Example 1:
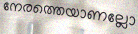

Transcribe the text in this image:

നേരത്തെയാണല്ലോ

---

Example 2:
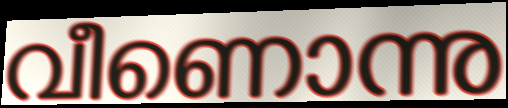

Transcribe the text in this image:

വീണൊന്നു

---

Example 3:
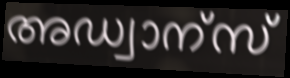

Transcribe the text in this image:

അഡ്വാന്സ്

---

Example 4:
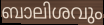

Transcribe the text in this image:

ബാലിശവും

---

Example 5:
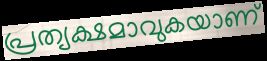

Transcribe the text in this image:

പ്രത്യക്ഷമാവുകയാണ്